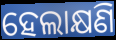
ହେଲାକ୍ଷଣି